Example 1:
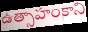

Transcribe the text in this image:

ఉత్సాహంకాని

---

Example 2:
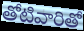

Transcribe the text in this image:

తోటివారితో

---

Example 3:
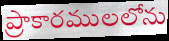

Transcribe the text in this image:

ప్రాకారములలోను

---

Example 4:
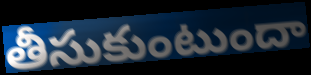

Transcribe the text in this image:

తీసుకుంటుందా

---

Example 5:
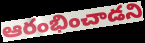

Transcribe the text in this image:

ఆరంభించాడని